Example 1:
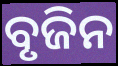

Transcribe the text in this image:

ବୃଜିନ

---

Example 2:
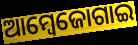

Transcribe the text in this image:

ଆମ୍ବେଜୋଗାଇ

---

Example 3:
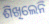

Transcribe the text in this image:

ଶିଖିଲେନି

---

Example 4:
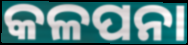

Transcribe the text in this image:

କଳପନା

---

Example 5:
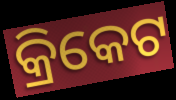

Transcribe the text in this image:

କ୍ରିକେଟ